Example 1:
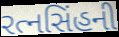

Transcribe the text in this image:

રત્નસિંહની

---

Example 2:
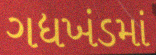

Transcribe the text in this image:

ગદ્યખંડમાં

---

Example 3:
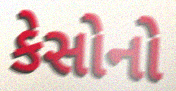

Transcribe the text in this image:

કેસોનો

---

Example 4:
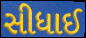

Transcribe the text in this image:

સીધાઈ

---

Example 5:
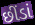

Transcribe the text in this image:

છીંડાં